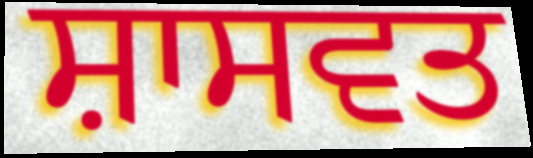
ਸ਼ਾਸਵਤ